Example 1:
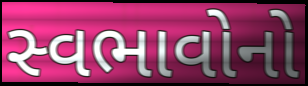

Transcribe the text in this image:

સ્વભાવોનો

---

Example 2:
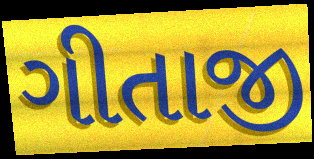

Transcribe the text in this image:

ગીતાજી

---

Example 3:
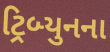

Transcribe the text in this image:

ટ્રિબ્યુનના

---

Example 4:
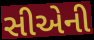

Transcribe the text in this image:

સીએની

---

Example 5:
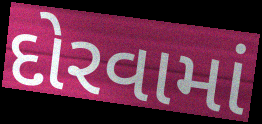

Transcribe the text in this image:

દોરવામાં